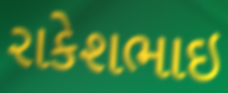
રાકેશભાઇ